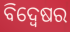
ବିଦ୍ୱେଷର